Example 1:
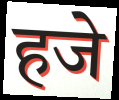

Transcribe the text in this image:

हजे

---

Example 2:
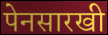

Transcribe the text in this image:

पेनसारखी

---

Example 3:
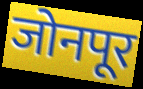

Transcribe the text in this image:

जोनपूर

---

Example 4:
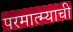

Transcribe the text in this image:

परमात्म्याची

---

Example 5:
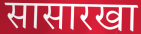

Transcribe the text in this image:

सासारखा